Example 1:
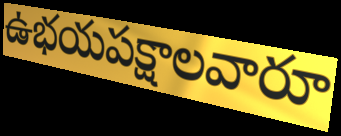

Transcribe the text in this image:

ఉభయపక్షాలవారూ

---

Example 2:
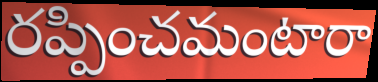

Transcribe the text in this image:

రప్పించమంటారా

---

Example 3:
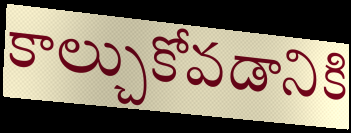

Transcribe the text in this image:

కాల్చుకోవడానికి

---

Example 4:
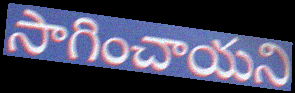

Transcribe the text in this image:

సాగించాయని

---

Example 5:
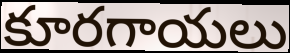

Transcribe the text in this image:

కూరగాయలు